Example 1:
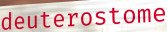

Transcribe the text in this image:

deuterostome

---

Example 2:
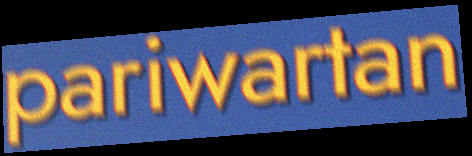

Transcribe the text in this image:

pariwartan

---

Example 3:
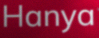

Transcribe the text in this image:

Hanya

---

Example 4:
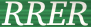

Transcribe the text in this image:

RRER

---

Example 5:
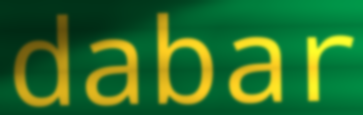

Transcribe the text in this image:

dabar